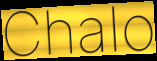
Chalo